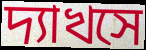
দ্যাখসে